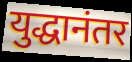
युद्धानंतर